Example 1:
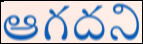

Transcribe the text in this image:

ఆగదని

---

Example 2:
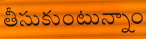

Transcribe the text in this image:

తీసుకుంటున్నాం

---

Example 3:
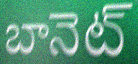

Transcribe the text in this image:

బానెట్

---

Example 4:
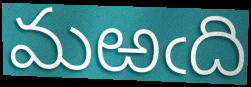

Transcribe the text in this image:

మఱఁది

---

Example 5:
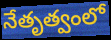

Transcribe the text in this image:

నేతృత్వంలో